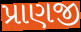
પ્રાણજી